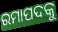
ରମାପଦକୁ